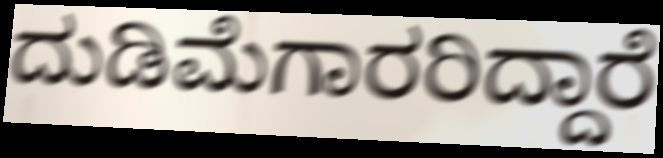
ದುಡಿಮೆಗಾರರಿದ್ದಾರೆ